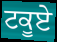
ਟਕੂਏ